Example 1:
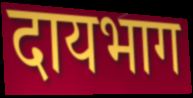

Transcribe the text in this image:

दायभाग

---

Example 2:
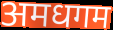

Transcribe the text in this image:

अमधगम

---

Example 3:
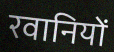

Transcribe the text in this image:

रवानियों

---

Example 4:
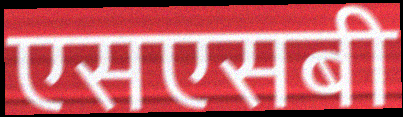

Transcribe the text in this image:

एसएसबी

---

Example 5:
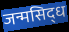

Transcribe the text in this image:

जन्मसिद्ध